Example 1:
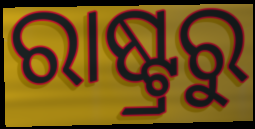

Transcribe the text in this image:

ରାଷ୍ଟ୍ରରୁ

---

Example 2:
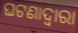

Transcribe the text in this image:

ଘଟଣାଦ୍ୱାରା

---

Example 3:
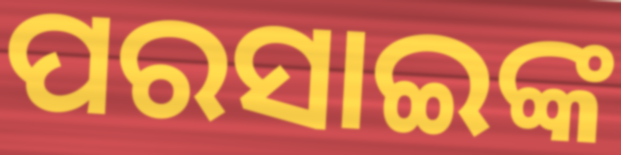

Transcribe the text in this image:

ପରସାଇଙ୍କ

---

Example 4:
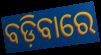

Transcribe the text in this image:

ବଡ଼ିବାରେ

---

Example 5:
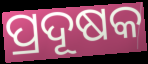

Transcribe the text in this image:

ପ୍ରଦୂଷକ